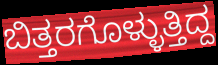
ಬಿತ್ತರಗೊಳ್ಳುತ್ತಿದ್ದ